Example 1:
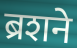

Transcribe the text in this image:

ब्रशने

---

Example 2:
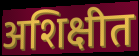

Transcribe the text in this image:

अशिक्षीत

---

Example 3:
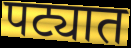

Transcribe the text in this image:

पट्यात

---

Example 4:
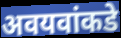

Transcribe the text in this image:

अवयवांकडे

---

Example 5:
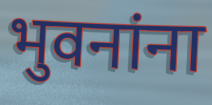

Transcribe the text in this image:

भुवनांना